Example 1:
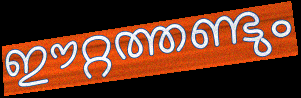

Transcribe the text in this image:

ഈറ്റത്തണ്ടും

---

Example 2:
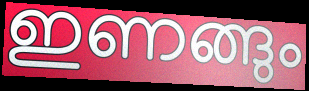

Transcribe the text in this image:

ഇണങ്ങും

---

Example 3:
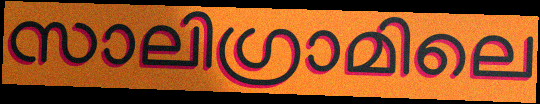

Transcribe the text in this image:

സാലിഗ്രാമിലെ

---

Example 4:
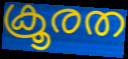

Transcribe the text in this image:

ക്രൂരത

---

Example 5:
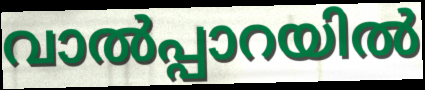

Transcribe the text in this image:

വാൽപ്പാറയിൽ